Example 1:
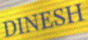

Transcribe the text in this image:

DINESH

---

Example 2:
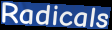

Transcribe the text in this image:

Radicals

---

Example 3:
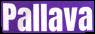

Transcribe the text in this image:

Pallava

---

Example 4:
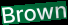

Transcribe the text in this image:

Brown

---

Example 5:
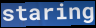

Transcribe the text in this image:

staring